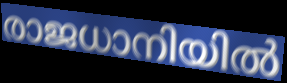
രാജധാനിയിൽ